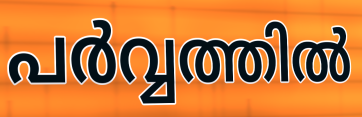
പർവ്വത്തിൽ